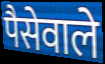
पैसेवाले